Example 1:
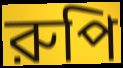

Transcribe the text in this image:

রুপি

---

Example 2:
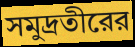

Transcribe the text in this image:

সমুদ্রতীরের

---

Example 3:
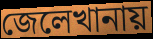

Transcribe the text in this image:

জেলেখানায়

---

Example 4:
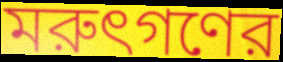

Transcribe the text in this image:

মরুৎগণের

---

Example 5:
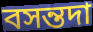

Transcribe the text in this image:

বসন্তদা